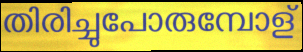
തിരിച്ചുപോരുമ്പോള്